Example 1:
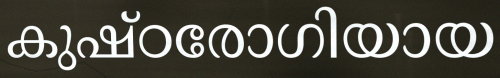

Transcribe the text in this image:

കുഷ്ഠരോഗിയായ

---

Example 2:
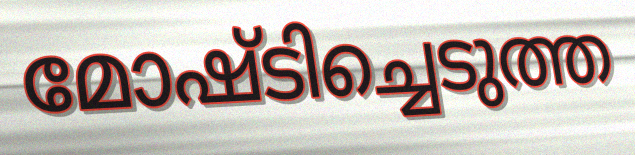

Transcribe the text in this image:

മോഷ്ടിച്ചെടുത്ത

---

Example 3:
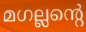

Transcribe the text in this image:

മഗല്ലന്റെ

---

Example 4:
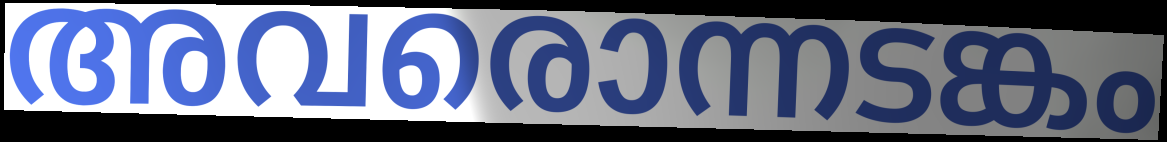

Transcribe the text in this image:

അവരൊന്നടങ്കം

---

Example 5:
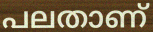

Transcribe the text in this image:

പലതാണ്